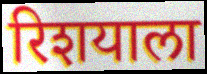
रिशयाला